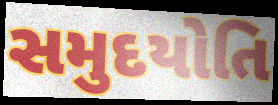
સમુદયોતિ